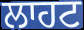
ਲਾਹਟ